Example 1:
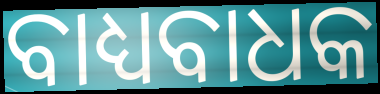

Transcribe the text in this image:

ବାଧ୍ୟବାଧକ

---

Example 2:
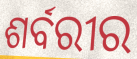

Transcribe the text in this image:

ଶର୍ବରୀର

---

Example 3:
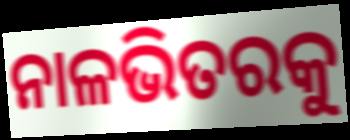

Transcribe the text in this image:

ନାଳଭିତରକୁ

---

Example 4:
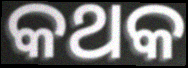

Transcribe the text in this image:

କଥକ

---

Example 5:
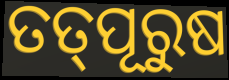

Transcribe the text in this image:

ତତ୍‌ପୂରୁଷ